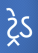
ટ્રેડ